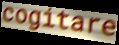
cogitare